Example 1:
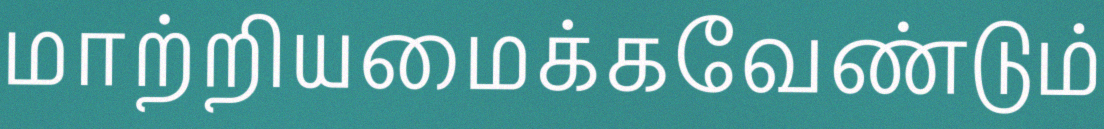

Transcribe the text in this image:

மாற்றியமைக்கவேண்டும்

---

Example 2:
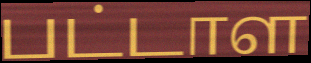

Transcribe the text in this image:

பட்டாள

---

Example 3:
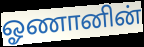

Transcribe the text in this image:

ஓணானின்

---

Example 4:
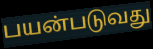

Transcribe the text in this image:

பயன்படுவது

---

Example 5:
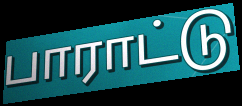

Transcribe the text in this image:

பாராட்டு